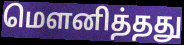
மௌனித்தது